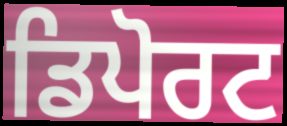
ਡਿਪੋਰਟ